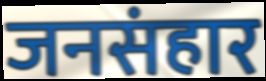
जनसंहार